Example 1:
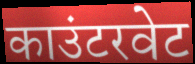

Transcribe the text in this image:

काउंटरवेट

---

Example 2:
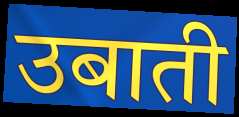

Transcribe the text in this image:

उबाती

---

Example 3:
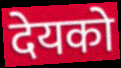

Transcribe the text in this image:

देयको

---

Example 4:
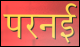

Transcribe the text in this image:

परनई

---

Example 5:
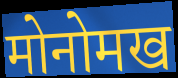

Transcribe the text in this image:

मोनोमख